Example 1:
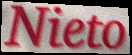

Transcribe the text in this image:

Nieto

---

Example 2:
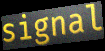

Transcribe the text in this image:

signal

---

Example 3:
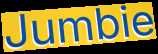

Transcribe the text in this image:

Jumbie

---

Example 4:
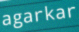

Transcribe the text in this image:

agarkar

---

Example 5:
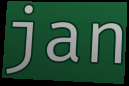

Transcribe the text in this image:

jan